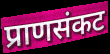
प्राणसंकट